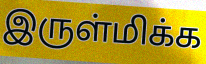
இருள்மிக்க